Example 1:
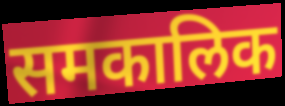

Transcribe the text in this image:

समकालिक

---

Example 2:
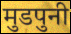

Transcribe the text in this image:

मुडपुनी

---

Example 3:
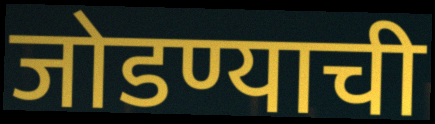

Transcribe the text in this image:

जोडण्याची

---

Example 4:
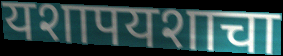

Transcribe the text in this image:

यशापयशाचा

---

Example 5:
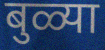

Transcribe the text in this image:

बुळ्या